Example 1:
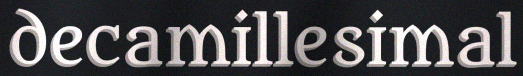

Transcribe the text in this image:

decamillesimal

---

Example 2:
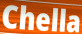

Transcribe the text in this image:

Chella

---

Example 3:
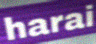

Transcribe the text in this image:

harai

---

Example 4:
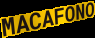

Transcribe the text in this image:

MACAFONO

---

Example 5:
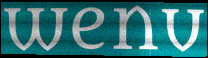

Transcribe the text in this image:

wenu